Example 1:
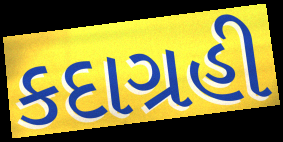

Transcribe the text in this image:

કદાગ્રહી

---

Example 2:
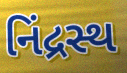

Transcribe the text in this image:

નિંદ્રસ્થ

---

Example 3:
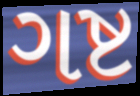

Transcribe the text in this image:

ગષ્ટ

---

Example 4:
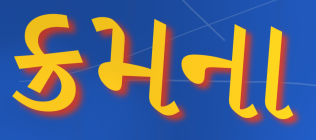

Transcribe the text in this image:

ક્રમના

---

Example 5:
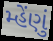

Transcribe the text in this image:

મ્હેંણું